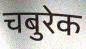
चबुरेक